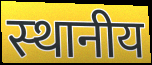
स्‍थानीय